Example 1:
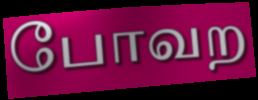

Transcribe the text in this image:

போவற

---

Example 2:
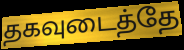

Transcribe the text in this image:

தகவுடைத்தே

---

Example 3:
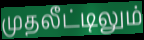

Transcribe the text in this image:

முதலீட்டிலும்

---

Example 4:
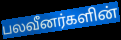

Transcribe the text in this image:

பலவீனர்களின்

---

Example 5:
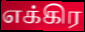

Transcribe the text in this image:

எக்கிர